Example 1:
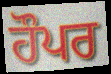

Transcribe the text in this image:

ਹੌਪਰ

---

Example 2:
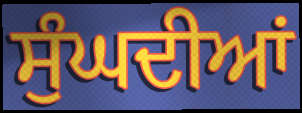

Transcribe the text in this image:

ਸੁੰਘਦੀਆਂ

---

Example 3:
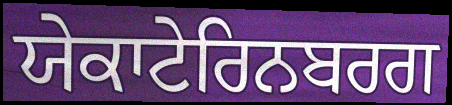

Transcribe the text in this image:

ਯੇਕਾਟੇਰਿਨਬਰਗ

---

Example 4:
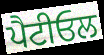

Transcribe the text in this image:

ਪੈਟੀਓਲ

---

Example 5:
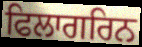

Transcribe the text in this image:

ਫਿਲਾਗਰਿਨ